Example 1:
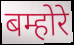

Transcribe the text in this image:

बम्होरे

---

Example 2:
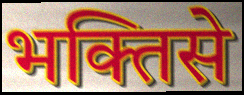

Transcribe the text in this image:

भक्तिसे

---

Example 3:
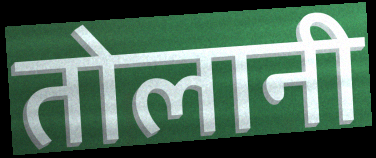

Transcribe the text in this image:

तोलानी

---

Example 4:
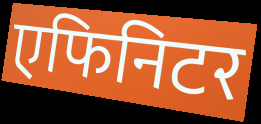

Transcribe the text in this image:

एफिनिटर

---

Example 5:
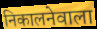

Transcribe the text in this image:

निकालनेवाला